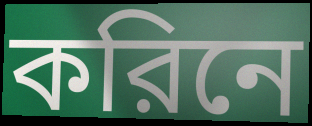
করিনে